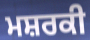
ਮਸ਼ਰਕੀ